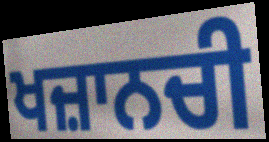
ਖਜ਼ਾਨਚੀ